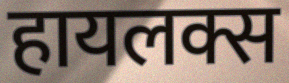
हायलक्स